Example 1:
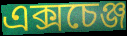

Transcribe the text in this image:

এক্সচেঞ্জ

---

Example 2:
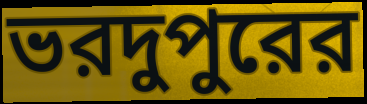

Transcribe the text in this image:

ভরদুপুরের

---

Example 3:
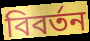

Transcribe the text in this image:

বিবর্তন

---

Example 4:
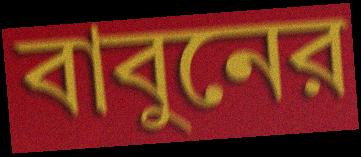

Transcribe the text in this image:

বাবুনের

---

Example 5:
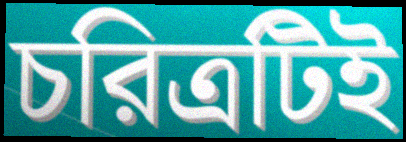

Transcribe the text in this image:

চরিত্রটিই